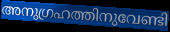
അനുഗ്രഹത്തിനുവേണ്ടി